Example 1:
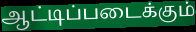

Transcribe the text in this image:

ஆட்டிப்படைக்கும்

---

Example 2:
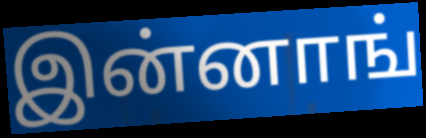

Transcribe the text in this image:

இன்னாங்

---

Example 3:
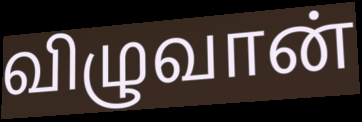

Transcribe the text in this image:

விழுவான்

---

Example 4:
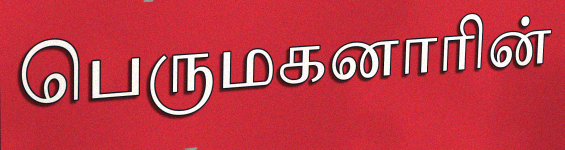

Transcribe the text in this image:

பெருமகனாரின்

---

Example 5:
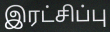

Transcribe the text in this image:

இரட்சிப்பு